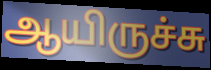
ஆயிருச்சு